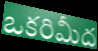
ఒకరిమీద